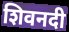
शिवनदी